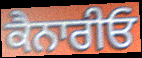
ਕੈਨਾਰੀਓ